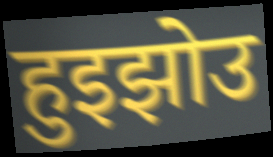
हुइझोउ